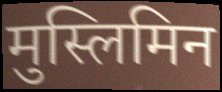
मुस्लिमिन